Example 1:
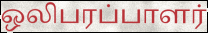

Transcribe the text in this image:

ஒலிபரப்பாளர்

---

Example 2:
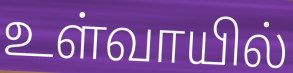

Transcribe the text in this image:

உள்வாயில்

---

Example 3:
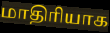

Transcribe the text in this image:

மாதிரியாக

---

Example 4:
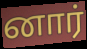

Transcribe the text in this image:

னார்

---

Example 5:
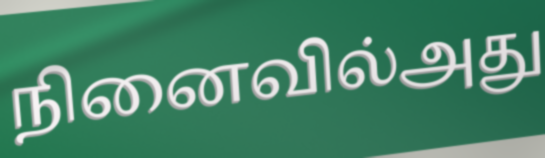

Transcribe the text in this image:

நினைவில்அது